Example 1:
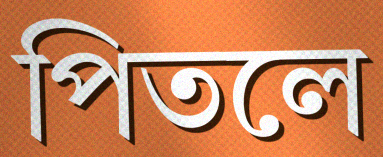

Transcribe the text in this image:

পিতলে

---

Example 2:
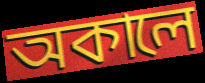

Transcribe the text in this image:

অকালে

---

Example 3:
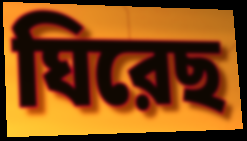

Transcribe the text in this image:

ঘিরেছ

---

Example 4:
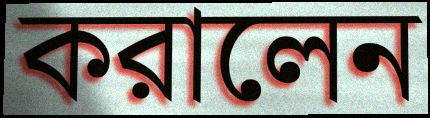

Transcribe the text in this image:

করালেন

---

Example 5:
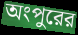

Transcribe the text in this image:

অংপুরের